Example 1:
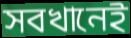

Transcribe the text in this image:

সবখানেই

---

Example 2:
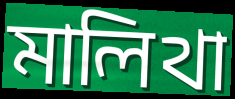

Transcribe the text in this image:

মালিথা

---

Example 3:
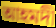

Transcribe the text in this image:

আহমদী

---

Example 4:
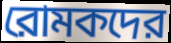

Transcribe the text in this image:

রোমকদের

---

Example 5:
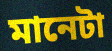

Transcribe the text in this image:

মানেটা